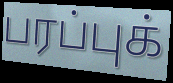
பரப்புக்